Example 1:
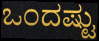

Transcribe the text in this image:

ಒಂದಷ್ಟು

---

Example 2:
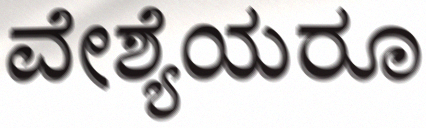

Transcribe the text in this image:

ವೇಶ್ಯೆಯರೂ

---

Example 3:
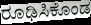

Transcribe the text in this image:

ರೂಢಿಸಿಕೊಂಡ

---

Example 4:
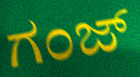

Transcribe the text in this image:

ಗಂಜ್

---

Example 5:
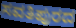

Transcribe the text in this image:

ಸವತಿಪುರದ